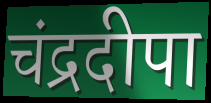
चंद्रदीपा